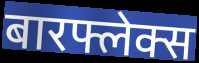
बारफ्लेक्स